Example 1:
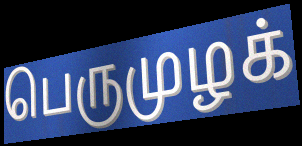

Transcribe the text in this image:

பெருமுழக்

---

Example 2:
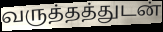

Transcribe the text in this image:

வருத்தத்துடன்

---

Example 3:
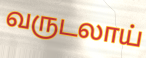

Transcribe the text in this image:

வருடலாய்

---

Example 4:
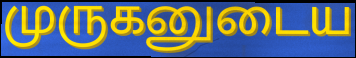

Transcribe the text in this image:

முருகனுடைய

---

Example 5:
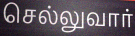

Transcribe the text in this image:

செல்லுவார்